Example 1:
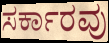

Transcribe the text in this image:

ಸರ್ಕಾರವು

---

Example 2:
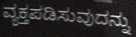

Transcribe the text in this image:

ವ್ಯಕ್ತಪಡಿಸುವುದನ್ನು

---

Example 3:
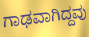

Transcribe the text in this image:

ಗಾಢವಾಗಿದ್ದವು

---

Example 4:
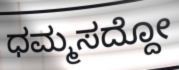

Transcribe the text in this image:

ಧಮ್ಮಸದ್ದೋ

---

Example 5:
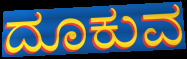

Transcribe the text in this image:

ದೂಕುವ